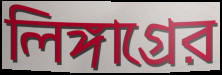
লিঙ্গাগ্রের